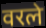
वरले